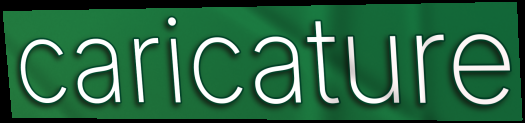
caricature